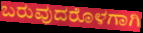
ಬರುವುದರೊಳಗಾಗಿ